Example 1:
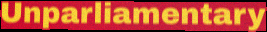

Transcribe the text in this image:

Unparliamentary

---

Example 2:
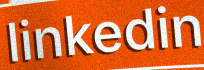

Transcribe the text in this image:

linkedin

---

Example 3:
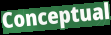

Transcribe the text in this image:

Conceptual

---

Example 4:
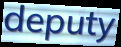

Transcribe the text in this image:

deputy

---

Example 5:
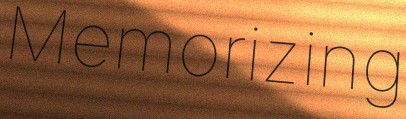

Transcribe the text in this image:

Memorizing